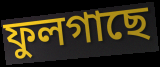
ফুলগাছে